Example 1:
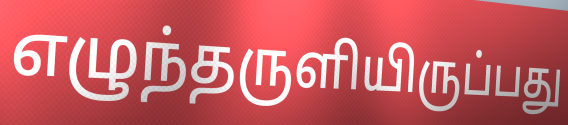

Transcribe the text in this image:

எழுந்தருளியிருப்பது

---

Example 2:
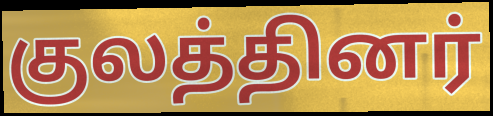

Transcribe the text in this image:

குலத்தினர்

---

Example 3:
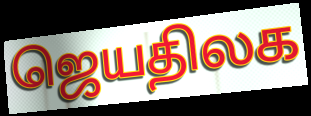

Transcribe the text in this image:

ஜெயதிலக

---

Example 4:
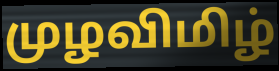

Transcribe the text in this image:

முழவிமிழ்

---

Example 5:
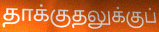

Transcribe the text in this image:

தாக்குதலுக்குப்